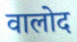
वालोद